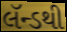
લૅન્ડથી